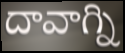
దావాగ్ని